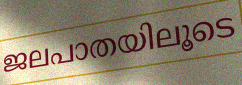
ജലപാതയിലൂടെ